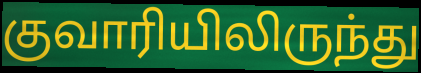
குவாரியிலிருந்து